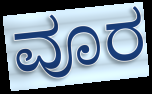
ವೂರ